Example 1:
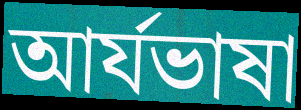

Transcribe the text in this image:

আর্যভাষা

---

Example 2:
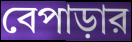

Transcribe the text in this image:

বেপাড়ার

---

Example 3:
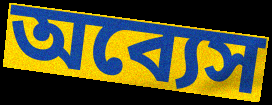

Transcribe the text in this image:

অব্যেস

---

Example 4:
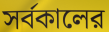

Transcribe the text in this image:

সর্বকালের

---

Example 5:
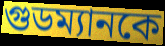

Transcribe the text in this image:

গুডম্যানকে